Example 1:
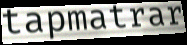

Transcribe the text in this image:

tapmatrar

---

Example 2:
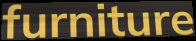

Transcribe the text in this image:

furniture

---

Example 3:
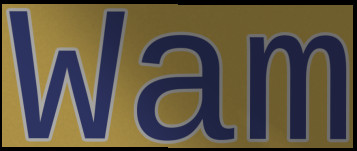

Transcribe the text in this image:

Wam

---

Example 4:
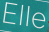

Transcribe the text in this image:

Elle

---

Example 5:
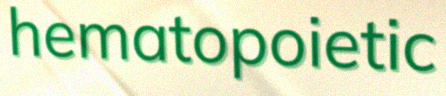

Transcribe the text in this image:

hematopoietic